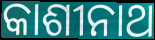
କାଶୀନାଥ